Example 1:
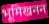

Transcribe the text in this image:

भूमिखनन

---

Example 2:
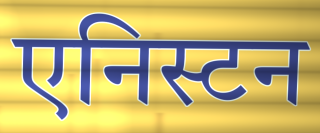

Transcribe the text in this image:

एनिस्टन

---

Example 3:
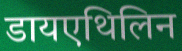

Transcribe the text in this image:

डायएथिलिन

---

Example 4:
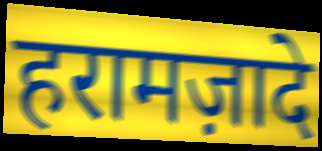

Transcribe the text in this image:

हरामज़ादे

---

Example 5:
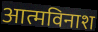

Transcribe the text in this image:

आत्मविनाश